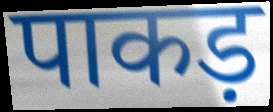
पाकड़